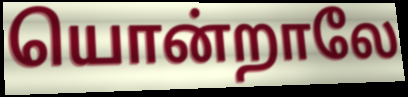
யொன்றாலே